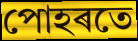
পোহৰতে